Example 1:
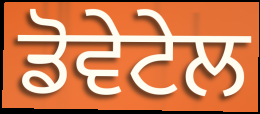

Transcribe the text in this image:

ਡੋਵੇਟੇਲ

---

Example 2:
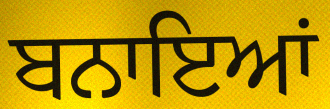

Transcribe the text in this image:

ਬਨਾਇਆਂ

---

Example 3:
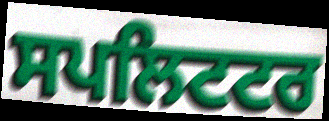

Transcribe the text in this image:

ਸਪਲਿਟਟਰ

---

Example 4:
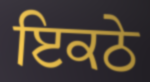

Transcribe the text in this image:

ਇਕਠੇ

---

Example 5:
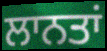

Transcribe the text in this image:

ਲਾਨਤਾਂ